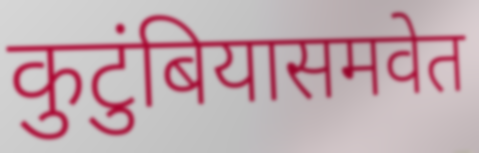
कुटुंबियासमवेत